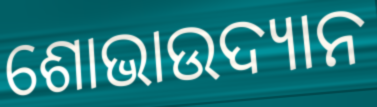
ଶୋଭାଉଦ୍ୟାନ